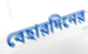
বেহারদিনের